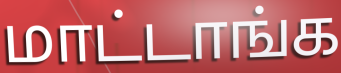
மாட்டாங்க